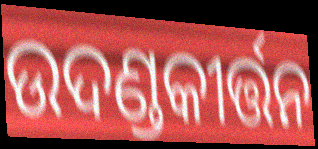
ଉଦଣ୍ଡକୀର୍ତ୍ତନ